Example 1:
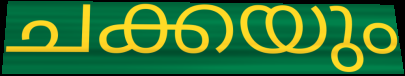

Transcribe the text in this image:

ചക്കയും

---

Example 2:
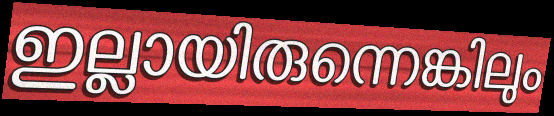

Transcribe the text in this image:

ഇല്ലായിരുന്നെങ്കിലും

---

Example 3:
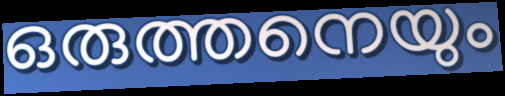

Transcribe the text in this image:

ഒരുത്തനെയും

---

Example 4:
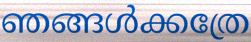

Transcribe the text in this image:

ഞങ്ങൾക്കത്രേ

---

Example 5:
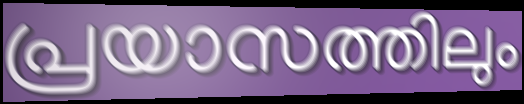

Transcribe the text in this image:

പ്രയാസത്തിലും